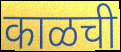
काळची